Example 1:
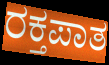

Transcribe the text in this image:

ರಕ್ತಪಾತ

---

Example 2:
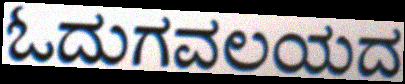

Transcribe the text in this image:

ಓದುಗವಲಯದ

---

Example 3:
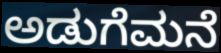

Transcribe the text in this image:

ಅಡುಗೆಮನೆ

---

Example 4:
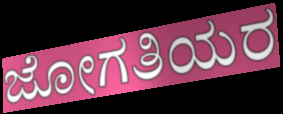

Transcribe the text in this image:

ಜೋಗತಿಯರ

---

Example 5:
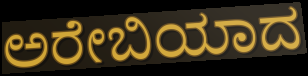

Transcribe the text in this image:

ಅರೇಬಿಯಾದ